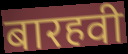
बारहवी